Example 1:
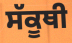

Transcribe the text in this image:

ਸੱਕੂਥੀ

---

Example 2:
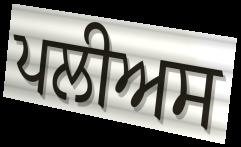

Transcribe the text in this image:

ਪਲੀਅਸ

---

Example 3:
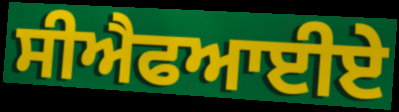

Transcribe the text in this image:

ਸੀਐਫਆਈਏ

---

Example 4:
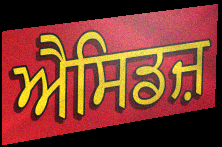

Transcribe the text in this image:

ਐਸਿਡਜ਼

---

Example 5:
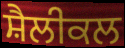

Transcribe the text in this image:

ਸ਼ੈਲੀਕਲ